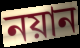
নয়ান